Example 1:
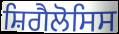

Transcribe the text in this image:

ਸ਼ਿਗੈਲੋਸਿਸ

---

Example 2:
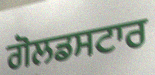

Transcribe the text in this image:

ਗੋਲਡਸਟਾਰ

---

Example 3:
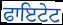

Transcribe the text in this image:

ਫਾਇਟੇਟ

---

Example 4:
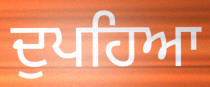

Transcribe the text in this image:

ਦੁਪਹਿਆ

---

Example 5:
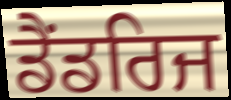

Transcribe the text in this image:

ਡੈਂਡਰਿਜ